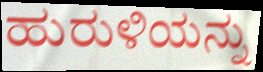
ಹುರುಳಿಯನ್ನು